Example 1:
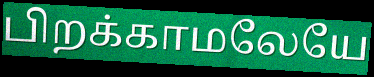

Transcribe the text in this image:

பிறக்காமலேயே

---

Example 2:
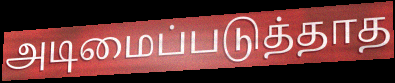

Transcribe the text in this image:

அடிமைப்படுத்தாத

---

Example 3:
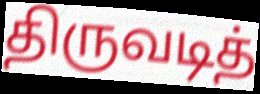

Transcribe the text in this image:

திருவடித்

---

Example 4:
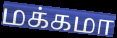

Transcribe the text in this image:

மக்கமா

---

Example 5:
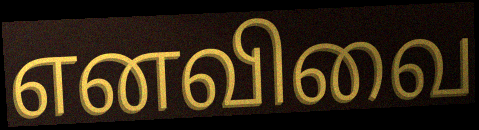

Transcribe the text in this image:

எனவிவை